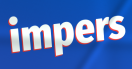
impers